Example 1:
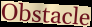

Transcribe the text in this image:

Obstacle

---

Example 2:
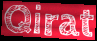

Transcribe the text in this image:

Qirat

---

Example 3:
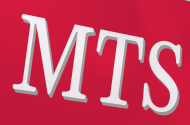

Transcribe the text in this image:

MTS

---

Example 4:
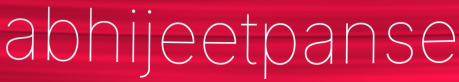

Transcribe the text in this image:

abhijeetpanse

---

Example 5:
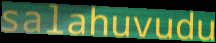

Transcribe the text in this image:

salahuvudu